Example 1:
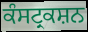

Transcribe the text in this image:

ਕੰਸਟ੍ਰਕਸ਼ਨ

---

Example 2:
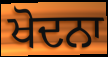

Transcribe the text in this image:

ਖੋਦਨਾ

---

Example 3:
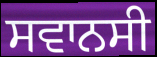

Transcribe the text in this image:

ਸਵਾਨਸੀ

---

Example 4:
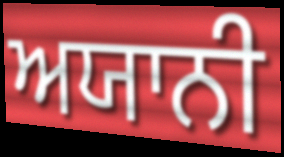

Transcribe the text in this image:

ਅਯਾਨੀ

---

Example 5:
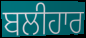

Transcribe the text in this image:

ਬਲੀਹਾਰ